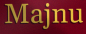
Majnu